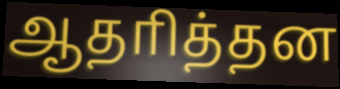
ஆதரித்தன